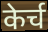
केर्च